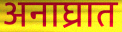
अनाघ्रात